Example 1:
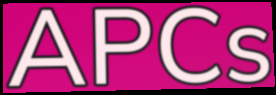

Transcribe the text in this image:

APCs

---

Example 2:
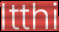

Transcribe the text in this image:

Itthi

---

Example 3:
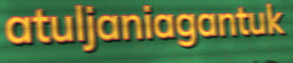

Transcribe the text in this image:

atuljaniagantuk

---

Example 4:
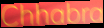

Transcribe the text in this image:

Chhabra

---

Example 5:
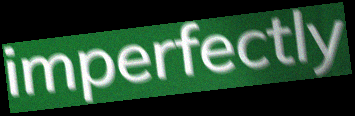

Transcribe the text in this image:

imperfectly